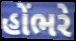
હોંભરે